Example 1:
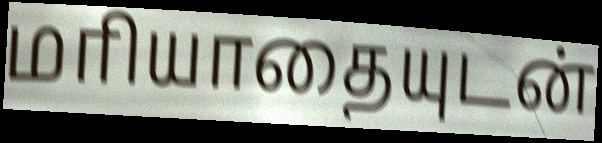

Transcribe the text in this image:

மரியாதையுடன்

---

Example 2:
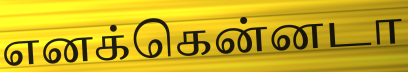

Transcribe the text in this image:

எனக்கென்னடா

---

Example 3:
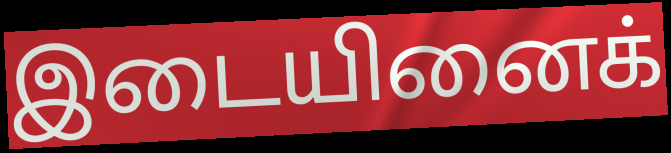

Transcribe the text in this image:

இடையினைக்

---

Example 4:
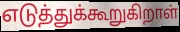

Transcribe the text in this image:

எடுத்துக்கூறுகிறாள்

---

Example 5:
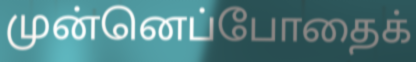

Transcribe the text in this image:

முன்னெப்போதைக்